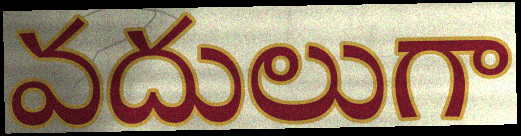
వదులుగా